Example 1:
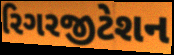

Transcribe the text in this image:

રિગરજીટેશન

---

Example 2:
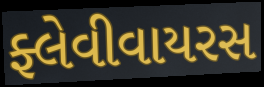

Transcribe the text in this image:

ફ્લેવીવાયરસ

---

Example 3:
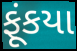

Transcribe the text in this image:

ફૂંકયા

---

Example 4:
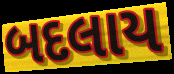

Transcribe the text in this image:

બદલાય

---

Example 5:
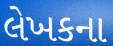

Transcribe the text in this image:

લેખકના